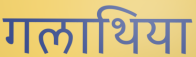
गलाथिया